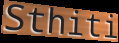
Sthiti